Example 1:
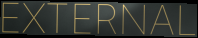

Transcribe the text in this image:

EXTERNAL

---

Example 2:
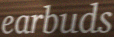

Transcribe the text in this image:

earbuds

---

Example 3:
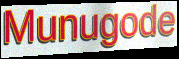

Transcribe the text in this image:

Munugode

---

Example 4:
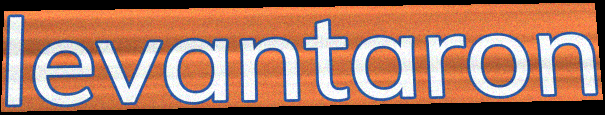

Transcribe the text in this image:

levantaron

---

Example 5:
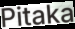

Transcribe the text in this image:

Pitaka